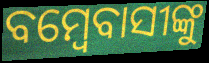
ବମ୍ବେବାସୀଙ୍କୁ